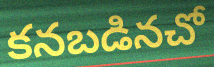
కనబడినచో